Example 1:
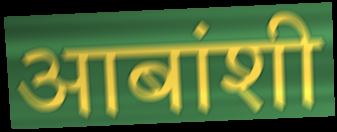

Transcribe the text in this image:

आबांशी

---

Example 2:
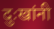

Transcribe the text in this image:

दुःखांनी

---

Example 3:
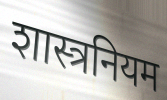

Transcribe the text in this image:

शास्त्रनियम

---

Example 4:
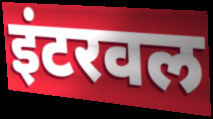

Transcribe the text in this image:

इंटरवल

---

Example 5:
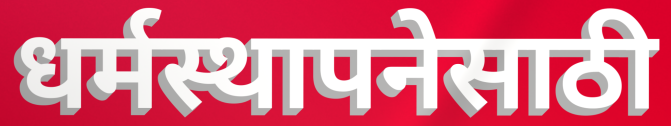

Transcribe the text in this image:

धर्मस्थापनेसाठी